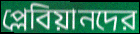
প্লেবিয়ানদের